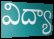
విద్యా